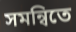
সমন্বিতে